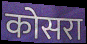
कोसरा